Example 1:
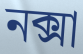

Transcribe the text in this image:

নক্সা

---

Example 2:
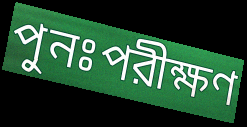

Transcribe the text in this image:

পুনঃপরীক্ষণ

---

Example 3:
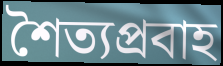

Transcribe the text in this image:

শৈত্যপ্রবাহ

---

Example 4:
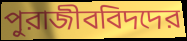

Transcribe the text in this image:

পুরাজীববিদদের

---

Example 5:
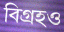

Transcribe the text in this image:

বিগ্রহও